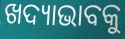
ଖଦ୍ୟାଭାବକୁ